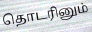
தொடரினும்